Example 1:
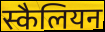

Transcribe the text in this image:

स्कैलियन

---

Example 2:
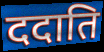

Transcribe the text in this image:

ददाति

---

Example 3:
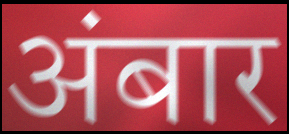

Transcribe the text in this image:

अंबार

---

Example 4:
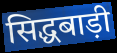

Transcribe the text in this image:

सिद्धबाड़ी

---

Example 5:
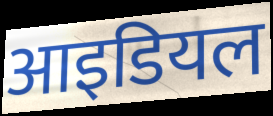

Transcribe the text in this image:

आइडियल